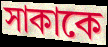
সাকাকে